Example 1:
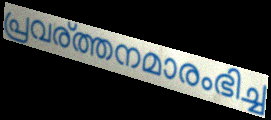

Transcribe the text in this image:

പ്രവര്ത്തനമാരംഭിച്ച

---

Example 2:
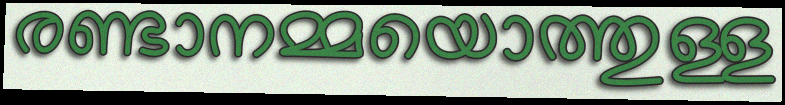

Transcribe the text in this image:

രണ്ടാനമ്മയൊത്തുള്ള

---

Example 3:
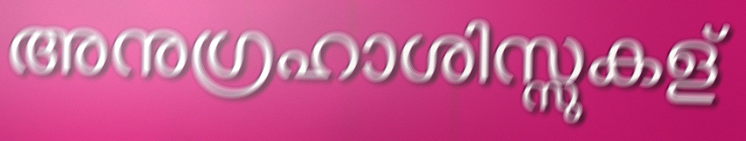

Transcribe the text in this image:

അനുഗ്രഹാശിസ്സുകള്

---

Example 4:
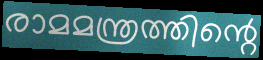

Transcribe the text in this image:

രാമമന്ത്രത്തിന്റെ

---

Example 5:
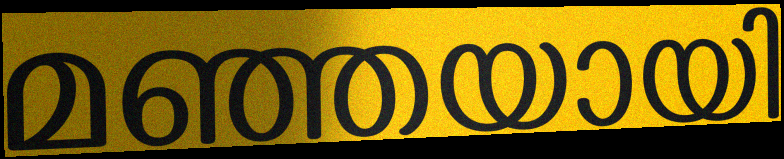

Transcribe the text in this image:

മഞ്ഞയായി